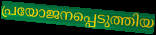
പ്രയോജനപ്പെടുത്തിയ